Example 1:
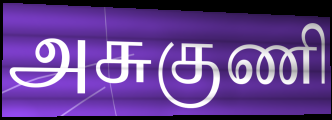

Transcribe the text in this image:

அசுகுணி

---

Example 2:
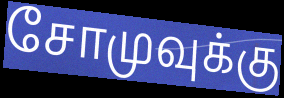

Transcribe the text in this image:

சோமுவுக்கு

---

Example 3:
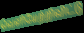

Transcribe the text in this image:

வெளியேற்றிவிட்டு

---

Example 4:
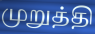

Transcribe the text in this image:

முறுத்தி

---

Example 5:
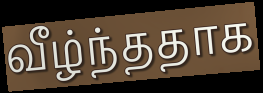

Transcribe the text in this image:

வீழ்ந்ததாக